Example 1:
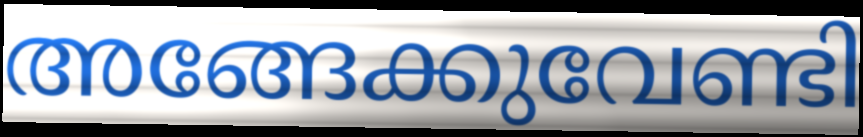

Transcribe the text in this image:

അങ്ങേക്കുവേണ്ടി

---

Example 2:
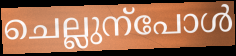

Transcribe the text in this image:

ചെല്ലുന്പോൾ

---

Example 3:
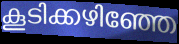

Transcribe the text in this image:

കൂടിക്കഴിഞ്ഞേ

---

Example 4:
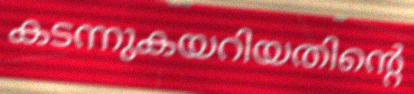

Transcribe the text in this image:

കടന്നുകയറിയതിന്റെ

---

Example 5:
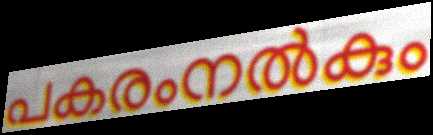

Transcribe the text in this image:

പകരംനൽകും